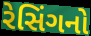
રેસિંગનો